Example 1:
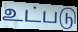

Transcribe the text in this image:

உட்படு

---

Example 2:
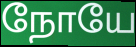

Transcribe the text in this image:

நோயே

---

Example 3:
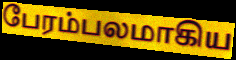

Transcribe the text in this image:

பேரம்பலமாகிய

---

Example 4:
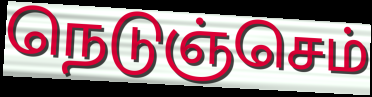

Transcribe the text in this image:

நெடுஞ்செம்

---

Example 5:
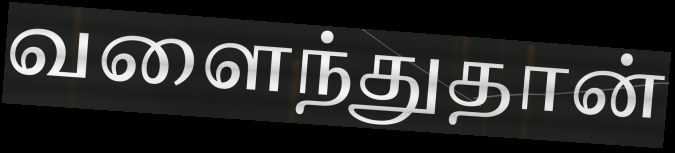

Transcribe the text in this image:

வளைந்துதான்